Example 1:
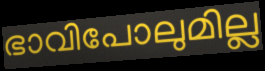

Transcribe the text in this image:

ഭാവിപോലുമില്ല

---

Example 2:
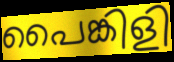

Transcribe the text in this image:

പൈങ്കിളി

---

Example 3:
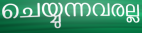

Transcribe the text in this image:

ചെയ്യുന്നവരല്ല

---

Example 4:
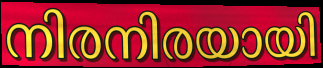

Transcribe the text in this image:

നിരനിരയായി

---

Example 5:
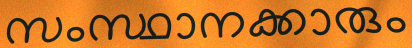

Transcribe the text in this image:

സംസ്ഥാനക്കാരും